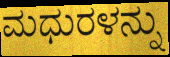
ಮಧುರಳನ್ನು